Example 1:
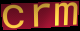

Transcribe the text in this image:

crm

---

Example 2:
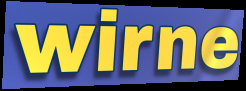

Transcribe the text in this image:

wirne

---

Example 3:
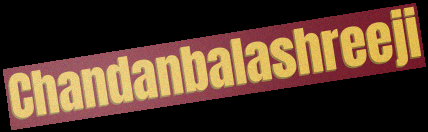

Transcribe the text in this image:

Chandanbalashreeji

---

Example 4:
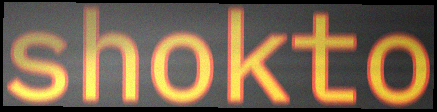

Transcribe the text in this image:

shokto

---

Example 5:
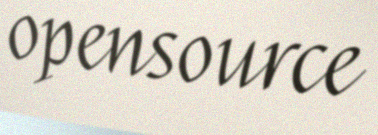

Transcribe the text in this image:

opensource